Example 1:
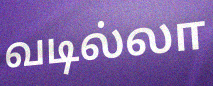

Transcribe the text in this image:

வடில்லா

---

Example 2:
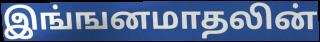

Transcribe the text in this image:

இங்ஙனமாதலின்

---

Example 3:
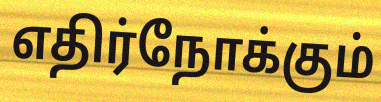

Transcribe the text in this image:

எதிர்நோக்கும்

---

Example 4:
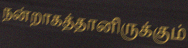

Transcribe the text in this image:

நன்றாகத்தானிருக்கும்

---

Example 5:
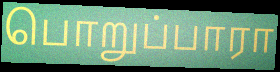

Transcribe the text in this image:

பொறுப்பாரா